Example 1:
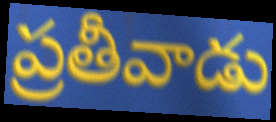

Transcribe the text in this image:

ప్రతీవాడు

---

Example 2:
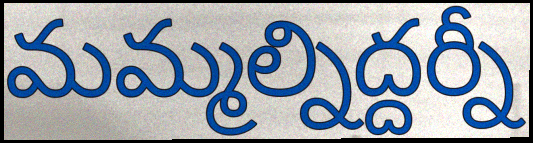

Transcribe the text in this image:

మమ్మల్నిద్దర్నీ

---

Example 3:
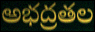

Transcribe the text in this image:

అభద్రతల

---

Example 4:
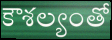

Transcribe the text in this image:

కౌశల్యంతో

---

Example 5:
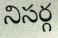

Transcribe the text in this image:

నిసర్గ